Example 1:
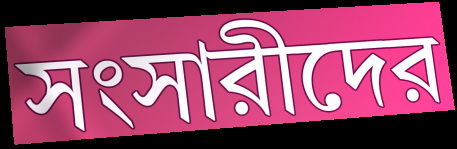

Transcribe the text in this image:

সংসারীদের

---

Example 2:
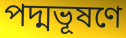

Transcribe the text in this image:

পদ্মভূষণে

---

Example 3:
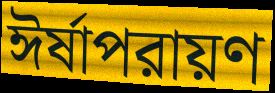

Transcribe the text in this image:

ঈর্ষাপরায়ণ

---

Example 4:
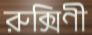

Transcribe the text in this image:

রুক্সিণী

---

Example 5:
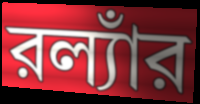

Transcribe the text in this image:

রল্যাঁর